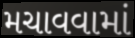
મચાવવામાં